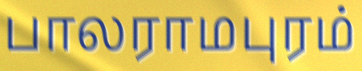
பாலராமபுரம்